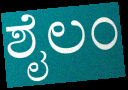
ಶೈಲಂ